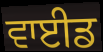
ਵਾਈਡ